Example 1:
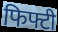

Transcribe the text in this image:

फिफ्टी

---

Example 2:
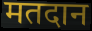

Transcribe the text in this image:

मतदान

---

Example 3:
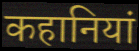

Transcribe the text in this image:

कहानियां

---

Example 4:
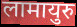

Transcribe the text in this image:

लामायुरु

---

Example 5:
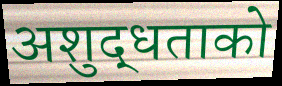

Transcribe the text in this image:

अशुद्धताको